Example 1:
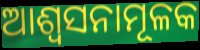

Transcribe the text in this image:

ଆଶ୍ୱସନାମୂଳକ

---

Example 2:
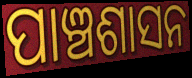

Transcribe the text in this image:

ପାଞ୍ଚଶାସନ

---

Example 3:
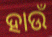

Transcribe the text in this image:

ହାଉଁ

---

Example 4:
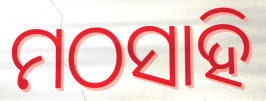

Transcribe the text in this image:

ମଠସାହି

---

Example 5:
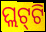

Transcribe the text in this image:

ପ୍ଲଟ୍‌ଟି